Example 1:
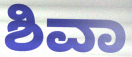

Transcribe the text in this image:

ಶಿವಾ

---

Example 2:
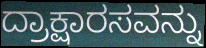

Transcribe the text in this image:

ದ್ರಾಕ್ಷಾರಸವನ್ನು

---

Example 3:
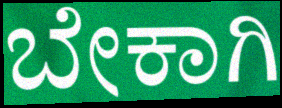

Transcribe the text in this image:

ಬೇಕಾಗಿ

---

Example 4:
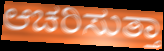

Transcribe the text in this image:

ಆಚರಿಸುತ್ತಾ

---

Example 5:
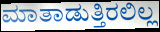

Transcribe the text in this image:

ಮಾತಾಡುತ್ತಿರಲಿಲ್ಲ